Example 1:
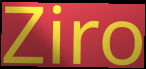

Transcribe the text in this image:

Ziro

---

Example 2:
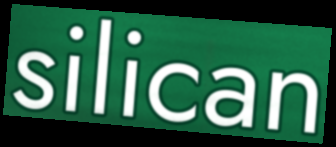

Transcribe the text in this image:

silican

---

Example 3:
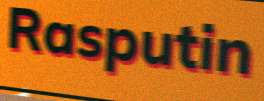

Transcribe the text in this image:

Rasputin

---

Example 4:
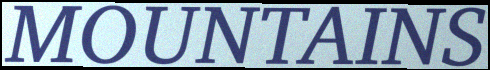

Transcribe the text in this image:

MOUNTAINS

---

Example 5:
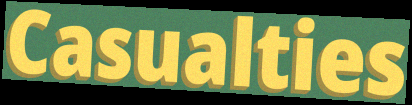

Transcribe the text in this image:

Casualties